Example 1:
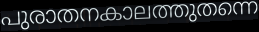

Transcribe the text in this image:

പുരാതനകാലത്തുതന്നെ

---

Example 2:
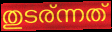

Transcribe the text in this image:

തുടര്ന്നത്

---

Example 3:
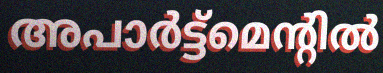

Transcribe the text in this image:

അപാർട്ട്മെന്റിൽ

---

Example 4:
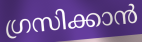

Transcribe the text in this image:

ഗ്രസിക്കാൻ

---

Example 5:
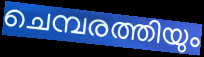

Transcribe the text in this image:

ചെമ്പരത്തിയും